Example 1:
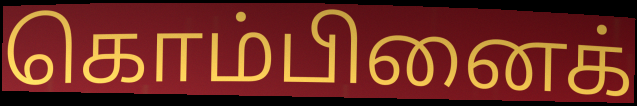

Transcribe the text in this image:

கொம்பினைக்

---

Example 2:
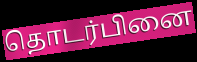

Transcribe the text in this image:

தொடர்பினை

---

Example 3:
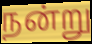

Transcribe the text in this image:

நன்று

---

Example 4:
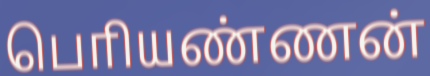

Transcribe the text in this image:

பெரியண்ணன்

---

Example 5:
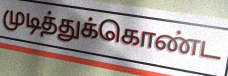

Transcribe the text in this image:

முடித்துக்கொண்ட